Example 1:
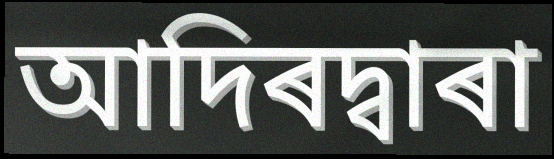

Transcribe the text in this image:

আদিৰদ্বাৰা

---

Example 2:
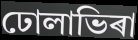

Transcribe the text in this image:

ঢোলাভিৰা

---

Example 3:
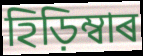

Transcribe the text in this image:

হিড়িম্বাৰ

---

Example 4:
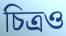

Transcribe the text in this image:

চিত্ৰও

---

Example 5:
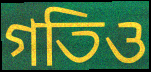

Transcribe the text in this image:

গতিও